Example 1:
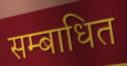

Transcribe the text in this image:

सम्बाधित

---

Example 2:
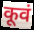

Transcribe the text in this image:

कूवं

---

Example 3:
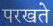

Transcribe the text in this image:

परखते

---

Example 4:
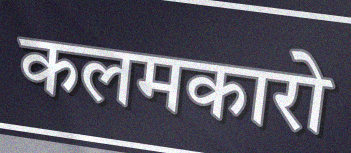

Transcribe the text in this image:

कलमकारो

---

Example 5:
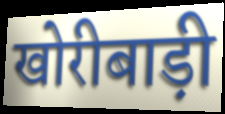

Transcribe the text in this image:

खोरीबाड़ी